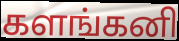
களங்கனி